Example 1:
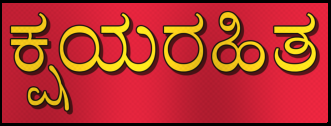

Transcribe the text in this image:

ಕ್ಷಯರಹಿತ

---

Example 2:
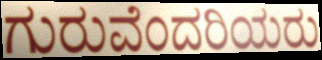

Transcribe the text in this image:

ಗುರುವೆಂದರಿಯರು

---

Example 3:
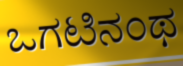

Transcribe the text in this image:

ಒಗಟಿನಂಥ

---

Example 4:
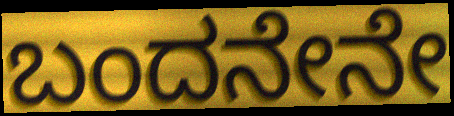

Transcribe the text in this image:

ಬಂದನೇನೇ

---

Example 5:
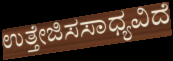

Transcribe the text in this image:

ಉತ್ತೇಜಿಸಸಾಧ್ಯವಿದೆ